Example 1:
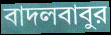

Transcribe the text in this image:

বাদলবাবুর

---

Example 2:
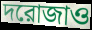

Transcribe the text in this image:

দরোজাও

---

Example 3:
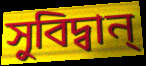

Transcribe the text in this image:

সুবিদ্বান্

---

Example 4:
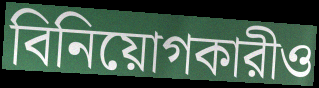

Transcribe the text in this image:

বিনিয়োগকারীও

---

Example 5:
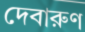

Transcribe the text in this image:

দেবারুণ